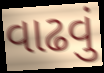
વાઢવું